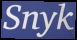
Snyk